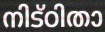
നിട്ഠിതാ